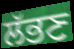
ਲੱਭਣ